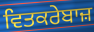
ਵਿਤਕਰੇਬਾਜ਼